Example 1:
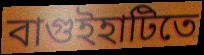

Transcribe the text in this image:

বাগুইহাটিতে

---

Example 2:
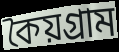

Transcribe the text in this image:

কৈয়গ্রাম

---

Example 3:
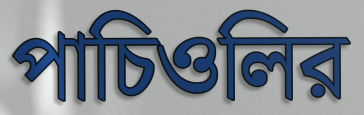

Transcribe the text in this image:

পাচিওলির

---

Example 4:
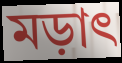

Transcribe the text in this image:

মড়াৎ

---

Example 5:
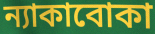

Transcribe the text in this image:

ন্যাকাবোকা